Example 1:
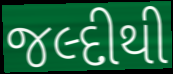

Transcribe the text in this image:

જલ્દીથી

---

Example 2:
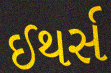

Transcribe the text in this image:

ઈથર્સ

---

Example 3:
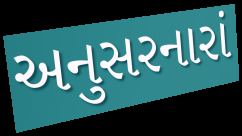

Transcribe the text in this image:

અનુસરનારાં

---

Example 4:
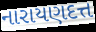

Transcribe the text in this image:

નારાયણદત્ત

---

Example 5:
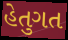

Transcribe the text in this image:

હેતુગત